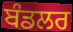
ਬੰਡਲਰ